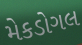
મેકડોગલ